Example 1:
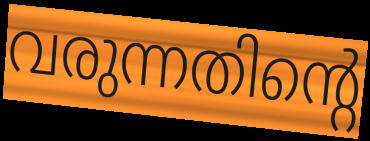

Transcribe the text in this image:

വരുന്നതിന്റെ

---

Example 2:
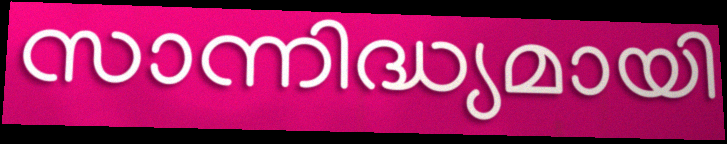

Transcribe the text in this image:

സാന്നിദ്ധ്യമായി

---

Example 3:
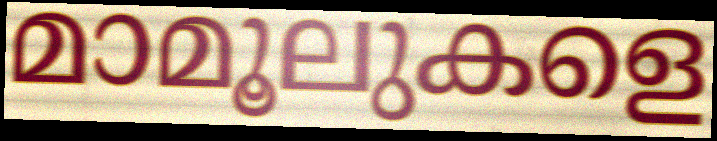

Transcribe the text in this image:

മാമൂലുകളെ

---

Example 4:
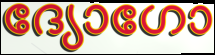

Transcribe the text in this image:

ദ്യോഗോ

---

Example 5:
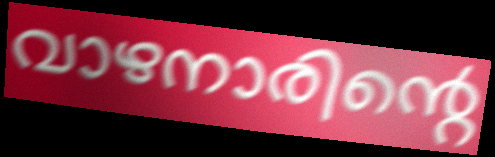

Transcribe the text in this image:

വാഴനാരിന്റെ